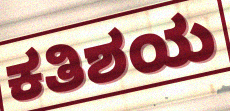
ಕತಿಶಯ